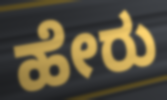
ಹೇರು